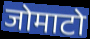
जोमाटो